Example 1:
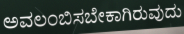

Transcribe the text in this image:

ಅವಲಂಬಿಸಬೇಕಾಗಿರುವುದು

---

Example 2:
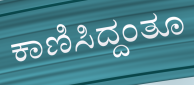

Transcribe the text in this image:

ಕಾಣಿಸಿದ್ದಂತೂ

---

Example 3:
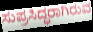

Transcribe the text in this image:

ಸುಪ್ರಸಿದ್ಧರಾಗಿರುವ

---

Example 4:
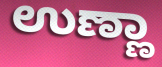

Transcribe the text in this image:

ಉಣ್ಣಾ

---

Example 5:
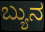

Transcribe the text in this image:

ಬ್ಯುನ